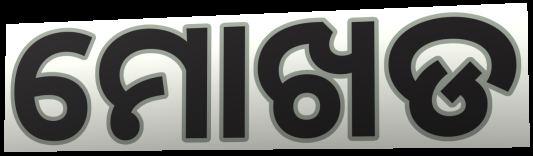
ମୋଖଡ